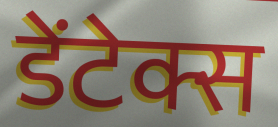
डेंटेक्स